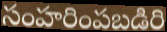
సంహరింపబడిరి